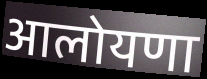
आलोयणा